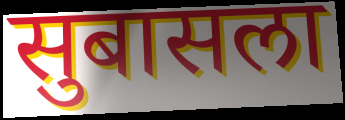
सुबासला